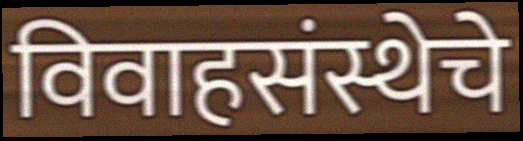
विवाहसंस्थेचे